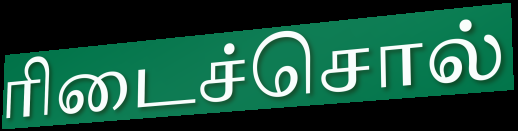
ரிடைச்சொல்